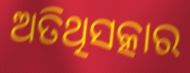
ଅତିଥିସତ୍କାର